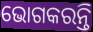
ଭୋଗକରନ୍ତି